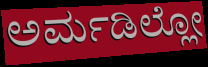
ಅರ್ಮಡಿಲ್ಲೋ